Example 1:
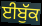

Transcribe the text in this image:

ਈਬੁੱਕ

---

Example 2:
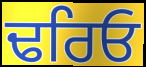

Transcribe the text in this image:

ਢਰਿਓ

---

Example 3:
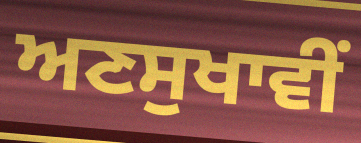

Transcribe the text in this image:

ਅਣਸੁਖਾਵੀਂ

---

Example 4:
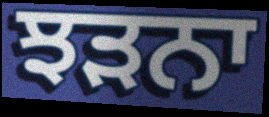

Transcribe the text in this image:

ਝੜਨਾ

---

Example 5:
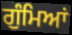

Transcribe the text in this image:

ਗੁੰਮਿਆਂ